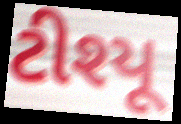
ટીશ્યૂ